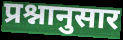
प्रश्नानुसार